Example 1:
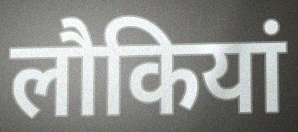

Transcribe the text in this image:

लौकियां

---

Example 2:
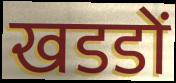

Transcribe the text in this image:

खडडों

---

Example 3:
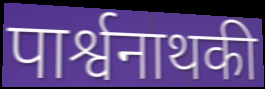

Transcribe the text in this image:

पार्श्वनाथकी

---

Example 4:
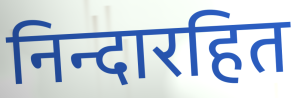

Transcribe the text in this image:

निन्दारहित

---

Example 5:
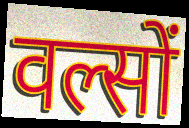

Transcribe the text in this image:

वल्सों